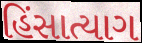
હિંસાત્યાગ